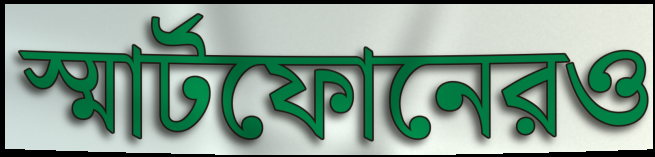
স্মার্টফোনেরও